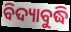
ବିଦ୍ୟାବୁଦ୍ଧି